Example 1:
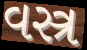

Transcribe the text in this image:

વસ્ત્ર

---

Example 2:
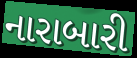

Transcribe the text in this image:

નારાબારી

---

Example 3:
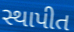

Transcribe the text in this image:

સ્થાપીત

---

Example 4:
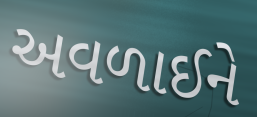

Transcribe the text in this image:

અવળાઈને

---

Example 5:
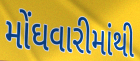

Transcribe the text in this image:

મોંઘવારીમાંથી